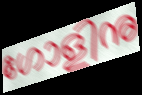
ഗോളിനു